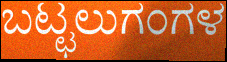
ಬಟ್ಟಲುಗಂಗಳ